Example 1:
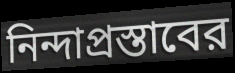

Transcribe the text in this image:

নিন্দাপ্রস্তাবের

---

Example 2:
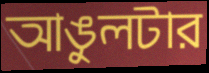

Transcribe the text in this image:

আঙুলটার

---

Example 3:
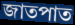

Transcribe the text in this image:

জাতপাত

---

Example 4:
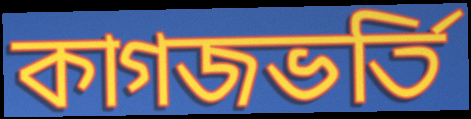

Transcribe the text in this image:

কাগজভর্তি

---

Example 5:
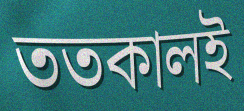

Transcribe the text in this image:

ততকালই